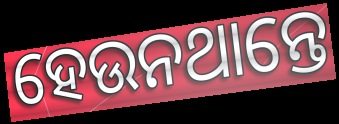
ହେଉନଥାନ୍ତେ